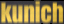
kunich